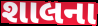
શાલના